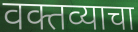
वक्तव्याचा